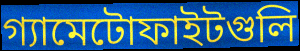
গ্যামেটোফাইটগুলি